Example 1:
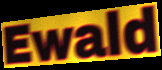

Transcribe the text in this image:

Ewald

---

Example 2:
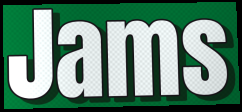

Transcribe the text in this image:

Jams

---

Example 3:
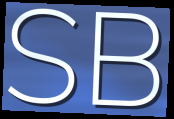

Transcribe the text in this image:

SB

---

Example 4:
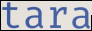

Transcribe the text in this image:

tara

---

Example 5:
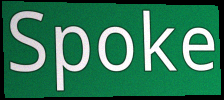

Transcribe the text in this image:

Spoke